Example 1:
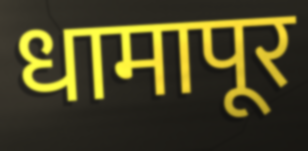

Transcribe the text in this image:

धामापूर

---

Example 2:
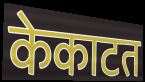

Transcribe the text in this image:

केकाटत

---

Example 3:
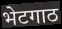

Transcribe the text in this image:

भेटगाठ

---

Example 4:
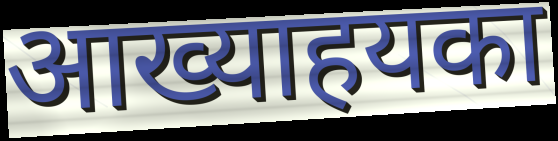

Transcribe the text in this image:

आख्याहयका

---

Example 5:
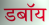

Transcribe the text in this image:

डबॉय